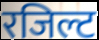
रजिल्ट